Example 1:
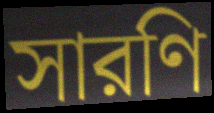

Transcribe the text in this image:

সারণি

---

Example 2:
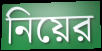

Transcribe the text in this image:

নিয়ের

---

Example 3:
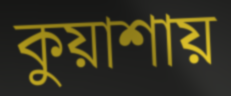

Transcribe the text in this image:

কুয়াশায়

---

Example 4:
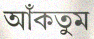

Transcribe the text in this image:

আঁকতুম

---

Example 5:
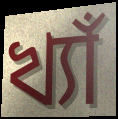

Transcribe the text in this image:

খ্যাঁ